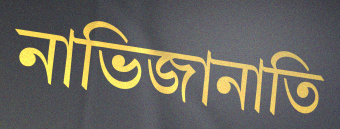
নাভিজানাতি